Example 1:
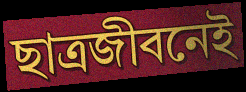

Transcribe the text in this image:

ছাত্রজীবনেই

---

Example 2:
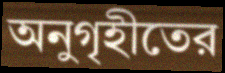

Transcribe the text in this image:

অনুগৃহীতের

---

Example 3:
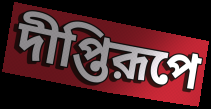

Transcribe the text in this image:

দীপ্তিরূপে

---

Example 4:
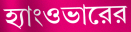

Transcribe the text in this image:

হ্যাংওভারের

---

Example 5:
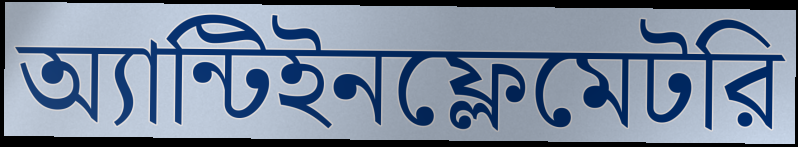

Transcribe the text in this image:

অ্যান্টিইনফ্লেমেটরি